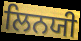
ਲਿਨਯੀ